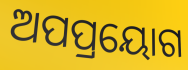
ଅପପ୍ରୟୋଗ